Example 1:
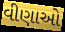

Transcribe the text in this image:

વીણાઓ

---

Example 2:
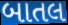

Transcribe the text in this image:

બાતલ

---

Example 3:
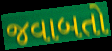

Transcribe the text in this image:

જવાબતો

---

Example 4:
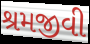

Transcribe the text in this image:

શ્રમજીવી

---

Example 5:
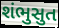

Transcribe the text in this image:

શંભુસુત